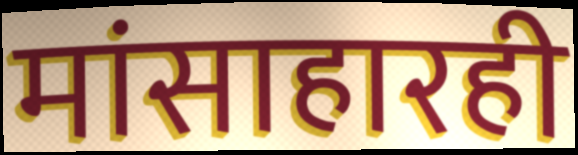
मांसाहारही